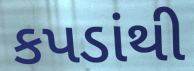
કપડાંથી